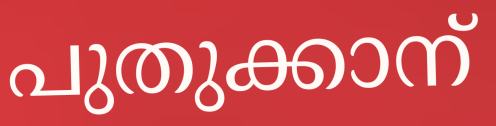
പുതുക്കാന്